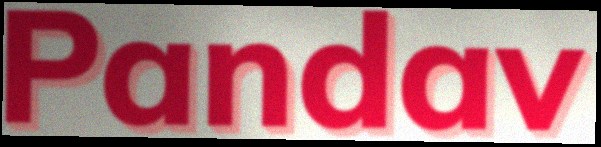
Pandav